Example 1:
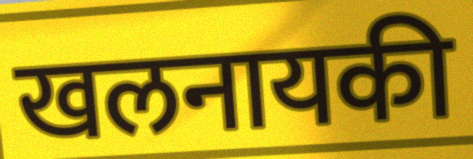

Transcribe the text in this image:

खलनायकी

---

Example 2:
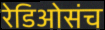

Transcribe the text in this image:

रेडिओसंच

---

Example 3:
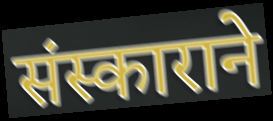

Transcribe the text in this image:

संस्काराने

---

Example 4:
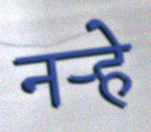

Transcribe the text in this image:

नऱ्हे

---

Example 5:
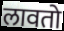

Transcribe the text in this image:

लावतो